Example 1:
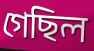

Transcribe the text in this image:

গেছিল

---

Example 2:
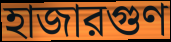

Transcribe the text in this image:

হাজারগুণ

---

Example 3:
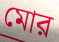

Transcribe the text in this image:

মোর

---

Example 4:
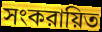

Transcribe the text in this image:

সংকরায়িত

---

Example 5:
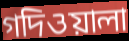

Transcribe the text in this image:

গদিওয়ালা